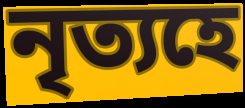
নৃত্যহে